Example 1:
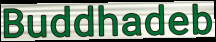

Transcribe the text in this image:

Buddhadeb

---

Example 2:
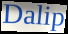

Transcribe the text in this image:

Dalip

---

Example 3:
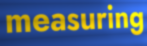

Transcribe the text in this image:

measuring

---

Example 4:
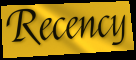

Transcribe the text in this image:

Recency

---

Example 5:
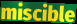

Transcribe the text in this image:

miscible